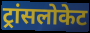
ट्रांसलोकेट